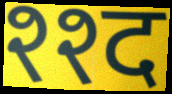
श्श्द